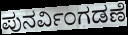
ಪುನರ್ವಿಂಗಡಣೆ